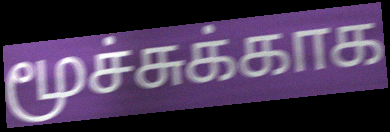
மூச்சுக்காக